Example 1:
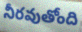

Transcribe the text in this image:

నీరవుతోంది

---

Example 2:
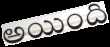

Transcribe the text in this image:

అయింది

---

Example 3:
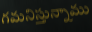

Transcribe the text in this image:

గమనిస్తున్నాము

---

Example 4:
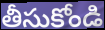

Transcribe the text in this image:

తీసుకోండి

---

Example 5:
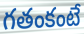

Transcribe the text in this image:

గతంకంటే